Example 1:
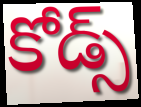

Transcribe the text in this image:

కోడ్స్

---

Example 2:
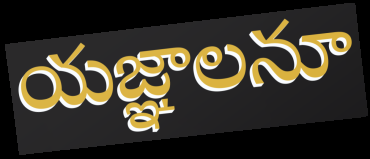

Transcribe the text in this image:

యజ్ఞాలనూ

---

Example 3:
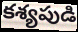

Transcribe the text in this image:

కశ్యపుడి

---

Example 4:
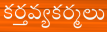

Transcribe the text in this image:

కర్తవ్యకర్మలు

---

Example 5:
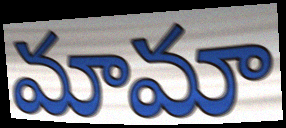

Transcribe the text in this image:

మామా